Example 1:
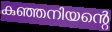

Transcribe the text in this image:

കുഞ്ഞനിയന്റെ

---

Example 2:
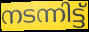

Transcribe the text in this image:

നടന്നിട്ട്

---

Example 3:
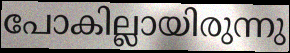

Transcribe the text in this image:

പോകില്ലായിരുന്നു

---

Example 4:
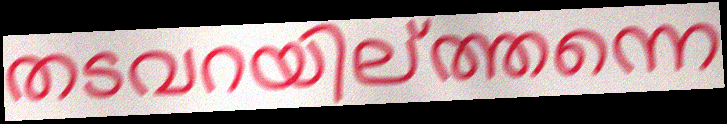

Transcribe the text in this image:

തടവറയില്ത്തന്നെ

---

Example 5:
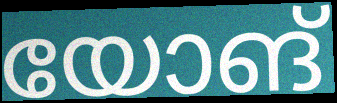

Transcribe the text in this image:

യോങ്